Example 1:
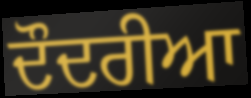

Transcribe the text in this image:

ਦੌਦਰੀਆ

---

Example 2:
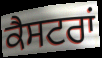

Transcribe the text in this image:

ਕੈਸਟਰਾਂ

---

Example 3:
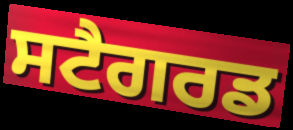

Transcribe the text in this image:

ਸਟੈਗਰਡ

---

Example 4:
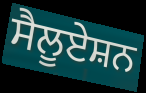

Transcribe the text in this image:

ਸੈਲੂਏਸ਼ਨ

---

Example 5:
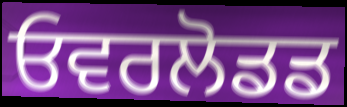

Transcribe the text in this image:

ਓਵਰਲੋਡਡ